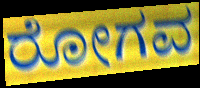
ರೋಗವ